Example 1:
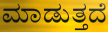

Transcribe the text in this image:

ಮಾಡುತ್ತದೆ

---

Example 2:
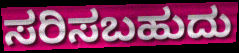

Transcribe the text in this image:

ಸರಿಸಬಹುದು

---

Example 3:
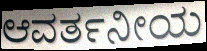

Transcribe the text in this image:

ಆವರ್ತನೀಯ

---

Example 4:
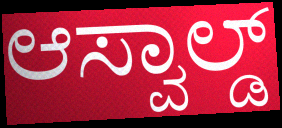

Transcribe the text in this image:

ಆಸ್ವಾಲ್ಡ್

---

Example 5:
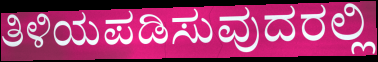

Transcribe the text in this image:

ತಿಳಿಯಪಡಿಸುವುದರಲ್ಲಿ